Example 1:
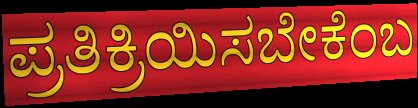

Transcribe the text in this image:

ಪ್ರತಿಕ್ರಿಯಿಸಬೇಕೆಂಬ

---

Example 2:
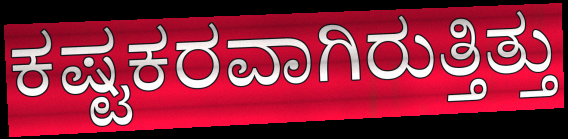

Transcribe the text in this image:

ಕಷ್ಟಕರವಾಗಿರುತ್ತಿತ್ತು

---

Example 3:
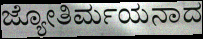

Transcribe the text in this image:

ಜ್ಯೋತಿರ್ಮಯನಾದ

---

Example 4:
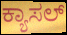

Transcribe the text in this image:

ಕ್ಯಾಸಲ್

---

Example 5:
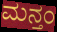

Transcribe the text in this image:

ಮನ್ತಂ